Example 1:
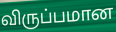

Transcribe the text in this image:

விருப்பமான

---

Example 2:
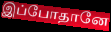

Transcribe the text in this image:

இப்போதானே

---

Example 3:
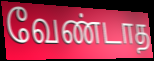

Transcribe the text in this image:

வேண்டாத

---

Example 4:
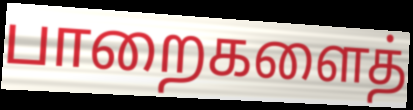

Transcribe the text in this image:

பாறைகளைத்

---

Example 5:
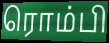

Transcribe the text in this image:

ரொம்பி